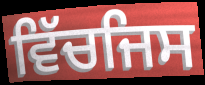
ਵਿੱਚਜਿਸ